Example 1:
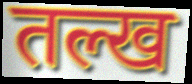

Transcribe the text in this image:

तल्ख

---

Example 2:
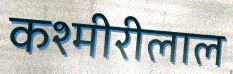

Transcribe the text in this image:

कश्मीरीलाल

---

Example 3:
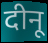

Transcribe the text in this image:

दीनू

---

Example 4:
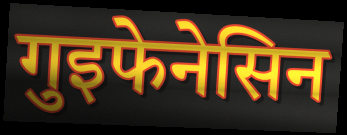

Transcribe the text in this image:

गुइफेनेसिन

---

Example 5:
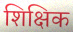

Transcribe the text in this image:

शिक्षिक